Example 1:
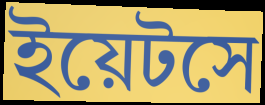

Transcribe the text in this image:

ইয়েটসে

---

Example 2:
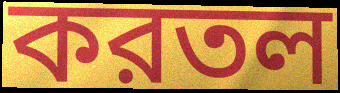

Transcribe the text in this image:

করতল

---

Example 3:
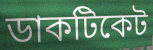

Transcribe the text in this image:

ডাকটিকেট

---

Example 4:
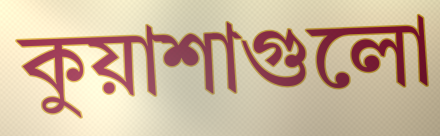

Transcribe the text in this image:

কুয়াশাগুলো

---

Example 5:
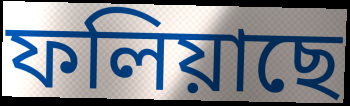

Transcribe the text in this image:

ফলিয়াছে